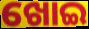
ଖୋଇ